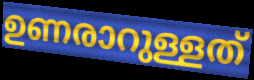
ഉണരാറുള്ളത്